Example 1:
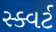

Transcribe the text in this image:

સ્ક્વર્ટ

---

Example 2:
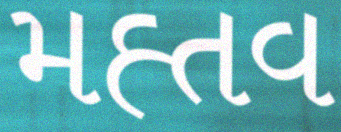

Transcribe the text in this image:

મહ્તવ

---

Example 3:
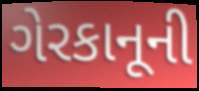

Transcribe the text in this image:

ગેરકાનૂની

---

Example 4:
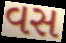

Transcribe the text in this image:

વસ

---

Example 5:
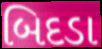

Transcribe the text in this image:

બિદડા